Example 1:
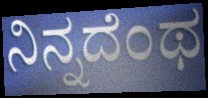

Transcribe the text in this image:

ನಿನ್ನದೆಂಥ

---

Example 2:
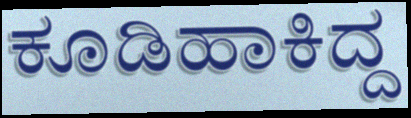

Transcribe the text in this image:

ಕೂಡಿಹಾಕಿದ್ದ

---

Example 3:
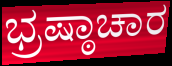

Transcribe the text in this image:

ಭ್ರಷ್ಠಾಚಾರ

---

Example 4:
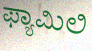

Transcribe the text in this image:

ಫ್ಯಾಮಿಲಿ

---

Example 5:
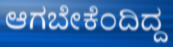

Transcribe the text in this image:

ಆಗಬೇಕೆಂದಿದ್ದ